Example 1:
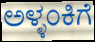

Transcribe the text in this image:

ಅಳ್ಳಂಕಿಗೆ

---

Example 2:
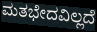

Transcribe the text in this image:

ಮತಭೇದವಿಲ್ಲದೆ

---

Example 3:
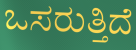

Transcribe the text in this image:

ಒಸರುತ್ತಿದೆ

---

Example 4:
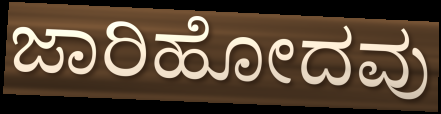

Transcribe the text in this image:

ಜಾರಿಹೋದವು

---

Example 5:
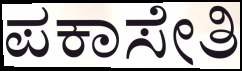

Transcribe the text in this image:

ಪಕಾಸೇತಿ